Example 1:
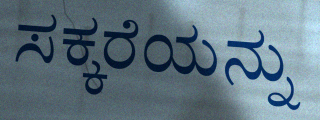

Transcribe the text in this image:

ಸಕ್ಕರೆಯನ್ನು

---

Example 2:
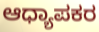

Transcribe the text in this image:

ಆಧ್ಯಾಪಕರ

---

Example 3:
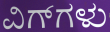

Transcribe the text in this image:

ವಿಗ್‌ಗಳು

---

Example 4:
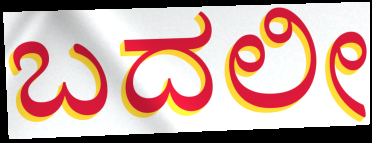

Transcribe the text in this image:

ಬದಲೀ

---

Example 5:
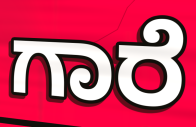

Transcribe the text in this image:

ಗಾರೆ